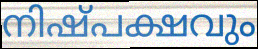
നിഷ്പക്ഷവും